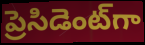
ప్రెసిడెంట్‌గా